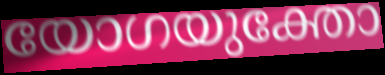
യോഗയുക്തോ